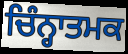
ਚਿੰਨ੍ਹਾਤਮਕ